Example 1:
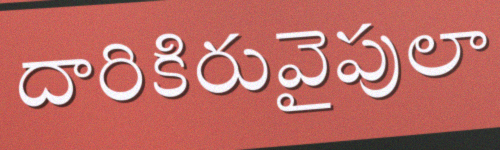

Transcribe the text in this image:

దారికిరువైపులా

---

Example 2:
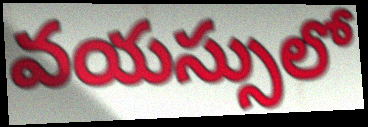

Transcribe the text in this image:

వయస్సులో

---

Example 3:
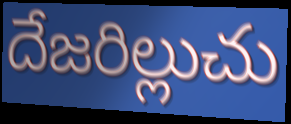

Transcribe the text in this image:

దేజరిల్లుచు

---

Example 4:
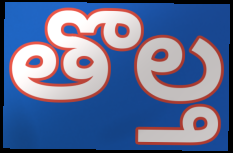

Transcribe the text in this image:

తొల్త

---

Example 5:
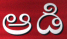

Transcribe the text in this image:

ఆడి